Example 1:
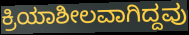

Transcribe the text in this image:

ಕ್ರಿಯಾಶೀಲವಾಗಿದ್ದವು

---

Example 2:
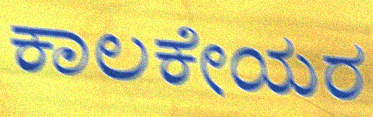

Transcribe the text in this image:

ಕಾಲಕೇಯರ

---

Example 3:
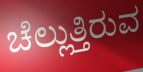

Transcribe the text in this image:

ಚೆಲ್ಲುತ್ತಿರುವ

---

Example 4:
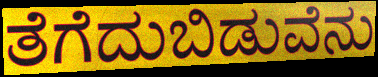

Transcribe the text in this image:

ತೆಗೆದುಬಿಡುವೆನು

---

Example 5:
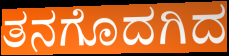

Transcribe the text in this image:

ತನಗೊದಗಿದ